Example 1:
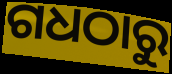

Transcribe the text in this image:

ଗଧଠାରୁ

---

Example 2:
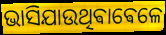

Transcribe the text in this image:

ଭାସିଯାଉଥିଵାଵେଳେ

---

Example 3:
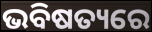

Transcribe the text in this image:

ଭବିଷତ୍ୟରେ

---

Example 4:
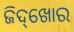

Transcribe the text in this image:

ଜିଦ୍‌ଖୋର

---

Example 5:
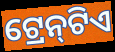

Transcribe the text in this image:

ଟ୍ରେନ୍‌ଟିଏ